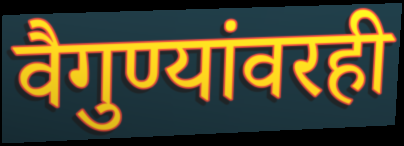
वैगुण्यांवरही